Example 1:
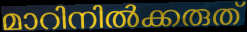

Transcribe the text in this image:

മാറിനിൽക്കരുത്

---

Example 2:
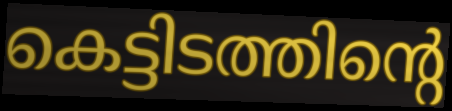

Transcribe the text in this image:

കെട്ടിടത്തിന്റെ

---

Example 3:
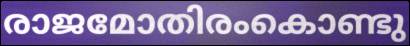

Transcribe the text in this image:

രാജമോതിരംകൊണ്ടു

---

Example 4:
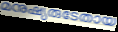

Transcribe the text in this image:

മനുഷ്യരുടേതായ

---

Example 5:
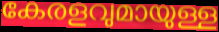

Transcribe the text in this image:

കേരളവുമായുള്ള